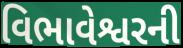
વિભાવેશ્વરની